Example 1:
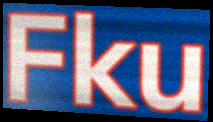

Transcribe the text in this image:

Fku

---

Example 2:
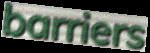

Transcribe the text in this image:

barriers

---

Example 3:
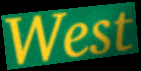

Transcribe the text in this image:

West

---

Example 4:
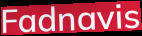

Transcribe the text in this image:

Fadnavis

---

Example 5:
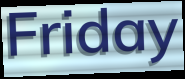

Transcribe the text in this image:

Friday